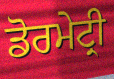
ਡੋਰਮੇਟ੍ਰੀ